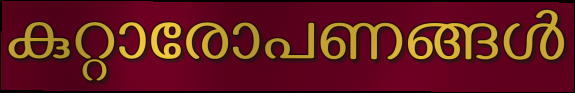
കുറ്റാരോപണങ്ങൾ